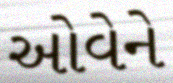
ઓવેને